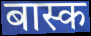
बास्क